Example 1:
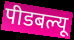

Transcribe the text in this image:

पीडबल्यू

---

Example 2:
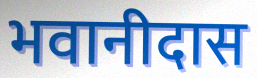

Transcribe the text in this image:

भवानीदास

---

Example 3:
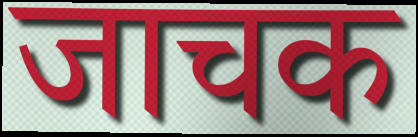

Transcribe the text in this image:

जाचक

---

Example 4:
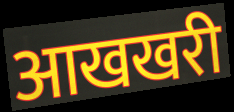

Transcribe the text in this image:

आखखरी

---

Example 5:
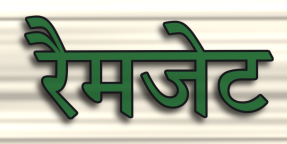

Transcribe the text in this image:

रैमजेट